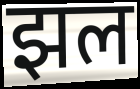
झल